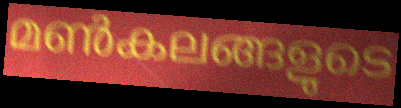
മൺകലങ്ങളുടെ